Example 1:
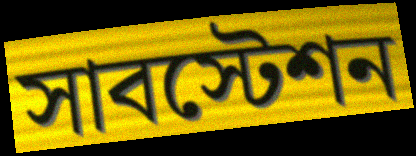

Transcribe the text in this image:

সাবস্টেশন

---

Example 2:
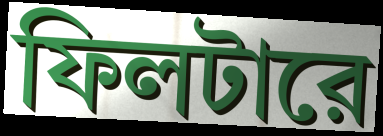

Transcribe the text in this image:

ফিলটারে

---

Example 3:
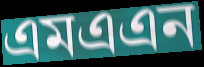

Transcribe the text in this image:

এমএএন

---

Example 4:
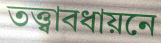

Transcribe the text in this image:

তত্ত্বাবধায়নে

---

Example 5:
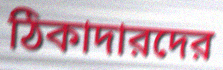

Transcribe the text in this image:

ঠিকাদারদের